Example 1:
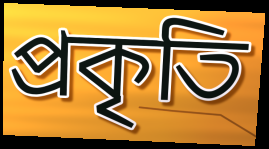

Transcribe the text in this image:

প্রকৃতি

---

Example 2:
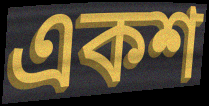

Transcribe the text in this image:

একশ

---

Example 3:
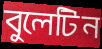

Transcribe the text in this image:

বুলেটিন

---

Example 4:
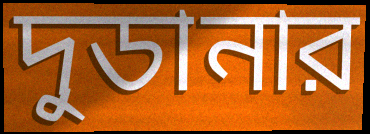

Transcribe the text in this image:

দুডানার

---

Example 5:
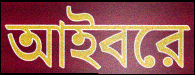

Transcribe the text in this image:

আইবরে